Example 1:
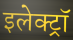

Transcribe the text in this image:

इलेक्ट्रॉ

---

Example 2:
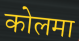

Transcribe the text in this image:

कोलमा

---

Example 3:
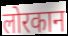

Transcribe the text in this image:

लोरकान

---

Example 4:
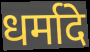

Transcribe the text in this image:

धर्मादे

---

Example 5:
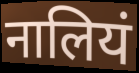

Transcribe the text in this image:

नालियं